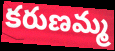
కరుణమ్మ